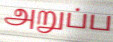
அறுப்ப